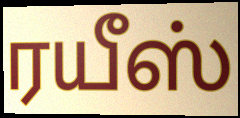
ரயீஸ்